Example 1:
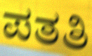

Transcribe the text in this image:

ಪತತಿ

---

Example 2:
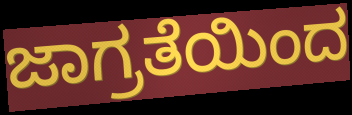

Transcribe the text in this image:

ಜಾಗ್ರತೆಯಿಂದ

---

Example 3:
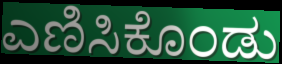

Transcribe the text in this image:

ಎಣಿಸಿಕೊಂಡು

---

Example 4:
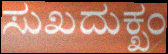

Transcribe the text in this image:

ಸುಖದುಕ್ಖಂ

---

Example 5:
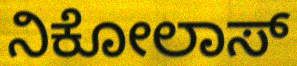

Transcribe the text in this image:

ನಿಕೋಲಾಸ್